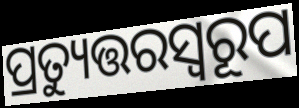
ପ୍ରତ୍ୟୁତ୍ତରସ୍ଵରୂପ